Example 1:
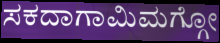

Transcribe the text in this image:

ಸಕದಾಗಾಮಿಮಗ್ಗೋ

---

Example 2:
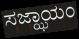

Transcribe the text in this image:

ಸಜ್ಝಾಯಂ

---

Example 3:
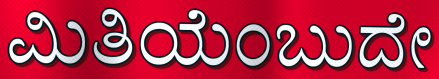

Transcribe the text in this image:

ಮಿತಿಯೆಂಬುದೇ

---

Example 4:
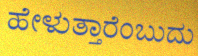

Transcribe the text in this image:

ಹೇಳುತ್ತಾರೆಂಬುದು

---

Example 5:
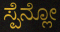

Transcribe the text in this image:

ಸ್ಪೆನ್ಲೋ